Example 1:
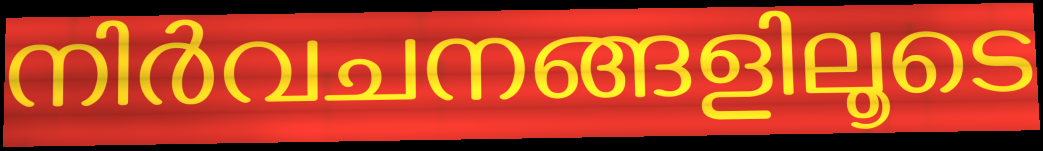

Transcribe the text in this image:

നിർവചനങ്ങളിലൂടെ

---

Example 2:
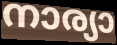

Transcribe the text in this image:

നാര്യാ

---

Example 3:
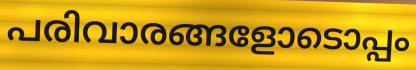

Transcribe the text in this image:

പരിവാരങ്ങളോടൊപ്പം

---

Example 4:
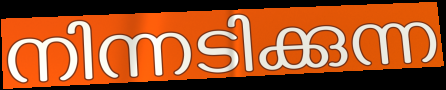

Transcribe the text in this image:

നിന്നടിക്കുന്ന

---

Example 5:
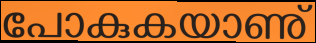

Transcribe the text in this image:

പോകുകയാണു്